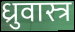
ध्रुवास्त्र